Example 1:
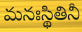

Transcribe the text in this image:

మనఃస్థితినీ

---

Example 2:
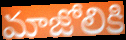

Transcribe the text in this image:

మాజోలికి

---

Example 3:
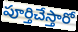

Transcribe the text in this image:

పూర్తిచేస్తారో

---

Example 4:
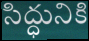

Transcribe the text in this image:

సిద్ధునికి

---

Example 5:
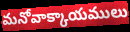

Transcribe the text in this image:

మనోవాక్కాయములు